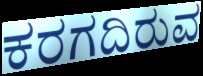
ಕರಗದಿರುವ